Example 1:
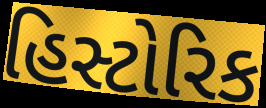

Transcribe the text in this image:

હિસ્ટોરિક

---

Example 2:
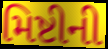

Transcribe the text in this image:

મિષ્ટીની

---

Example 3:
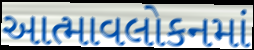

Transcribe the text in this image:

આત્માવલોકનમાં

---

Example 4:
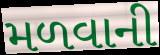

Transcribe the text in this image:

મળવાની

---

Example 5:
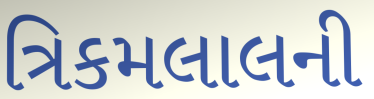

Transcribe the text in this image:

ત્રિકમલાલની